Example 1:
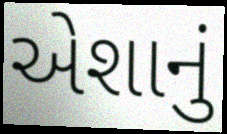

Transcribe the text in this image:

એશાનું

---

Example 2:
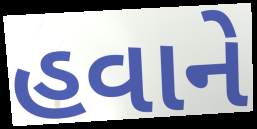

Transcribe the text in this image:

હવાને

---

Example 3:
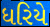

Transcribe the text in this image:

ધરિયે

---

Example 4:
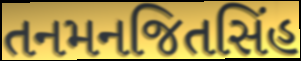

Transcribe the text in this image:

તનમનજિતસિંહ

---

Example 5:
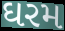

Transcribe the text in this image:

ઘરમ